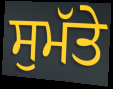
ਸੁਮੱਤੇ